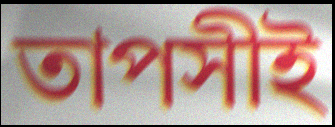
তাপসীই